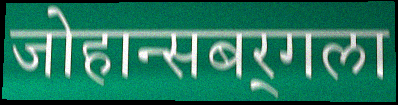
जोहान्सबर्गला